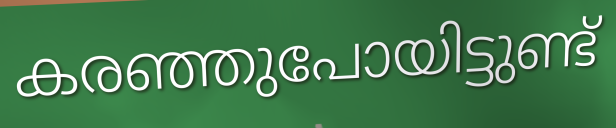
കരഞ്ഞുപോയിട്ടുണ്ട്